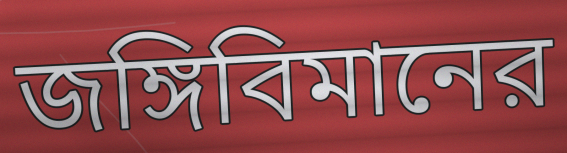
জঙ্গিবিমানের